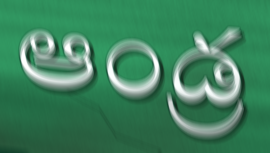
ఆండ్ర